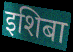
इशिबा